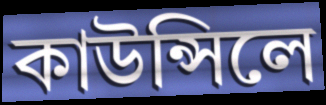
কাউন্সিলে